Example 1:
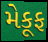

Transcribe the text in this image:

મેકૂફ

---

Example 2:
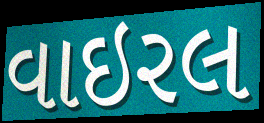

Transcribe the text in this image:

વાઇરલ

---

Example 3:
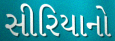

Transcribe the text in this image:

સીરિયાનો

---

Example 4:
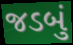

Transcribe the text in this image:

જડબું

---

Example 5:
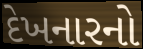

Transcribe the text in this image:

દેખનારનો